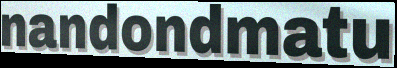
nandondmatu